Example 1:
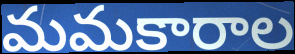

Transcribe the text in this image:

మమకారాల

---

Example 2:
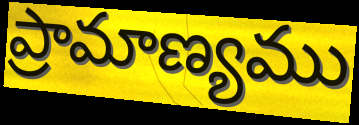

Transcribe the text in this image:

ప్రామాణ్యము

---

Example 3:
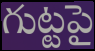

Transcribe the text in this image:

గుట్టపై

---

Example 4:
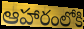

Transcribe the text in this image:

ఆహారంలోకి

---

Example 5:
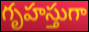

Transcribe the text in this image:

గృహస్తుగా